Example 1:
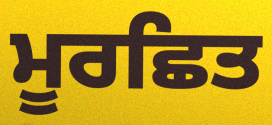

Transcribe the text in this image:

ਮੂਰਛਿਤ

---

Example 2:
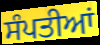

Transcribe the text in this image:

ਸੰਪਤੀਆਂ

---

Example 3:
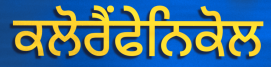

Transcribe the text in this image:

ਕਲੋਰੈਂਫੇਨਿਕੋਲ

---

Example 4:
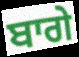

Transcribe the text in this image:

ਬਾਗੇ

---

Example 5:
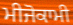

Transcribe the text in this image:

ਮੀਜੋਕਾਮੀ